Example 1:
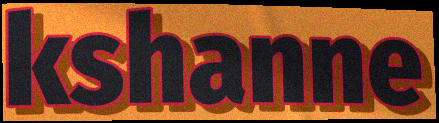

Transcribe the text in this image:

kshanne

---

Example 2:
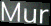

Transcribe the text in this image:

Mur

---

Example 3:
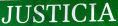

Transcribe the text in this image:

JUSTICIA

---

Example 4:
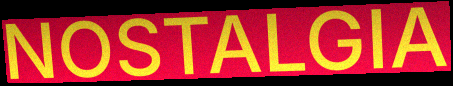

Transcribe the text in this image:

NOSTALGIA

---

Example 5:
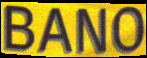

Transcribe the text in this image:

BANO